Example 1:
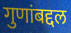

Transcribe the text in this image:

गुणांबद्दल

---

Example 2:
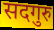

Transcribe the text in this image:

सदगुरु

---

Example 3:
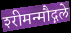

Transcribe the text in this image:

श्रीमन्मौद्गले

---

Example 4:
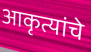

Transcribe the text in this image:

आकृत्यांचे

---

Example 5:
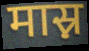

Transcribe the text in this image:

मास्न